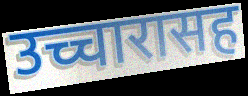
उच्चारासह